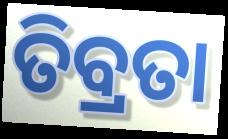
ତିବ୍ରତା